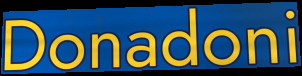
Donadoni